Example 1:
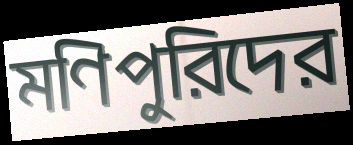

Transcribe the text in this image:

মণিপুরিদের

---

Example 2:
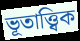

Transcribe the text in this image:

ভূতাত্ত্বিক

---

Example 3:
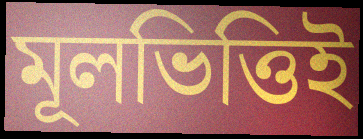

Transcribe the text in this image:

মূলভিত্তিই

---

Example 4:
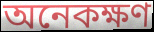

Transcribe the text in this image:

অনেকক্ষণ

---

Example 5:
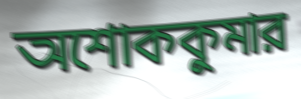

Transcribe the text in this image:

অশোককুমার